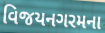
વિજયનગરમના